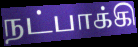
நட்பாக்கி